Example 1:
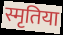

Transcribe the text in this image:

स्मृतिया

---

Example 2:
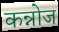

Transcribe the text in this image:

कन्नोज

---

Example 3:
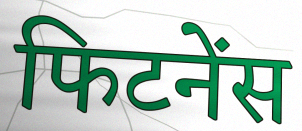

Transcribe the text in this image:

फिटनेंस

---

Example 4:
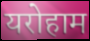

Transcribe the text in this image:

यरोहाम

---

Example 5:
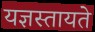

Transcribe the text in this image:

यज्ञस्तायते